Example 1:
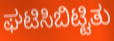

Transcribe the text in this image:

ಘಟಿಸಿಬಿಟ್ಟಿತು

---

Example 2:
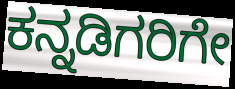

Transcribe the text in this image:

ಕನ್ನಡಿಗರಿಗೇ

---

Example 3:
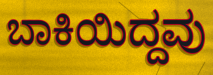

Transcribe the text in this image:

ಬಾಕಿಯಿದ್ದವು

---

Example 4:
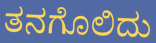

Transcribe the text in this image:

ತನಗೊಲಿದು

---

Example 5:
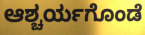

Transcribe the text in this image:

ಆಶ್ಚರ್ಯಗೊಂಡೆ